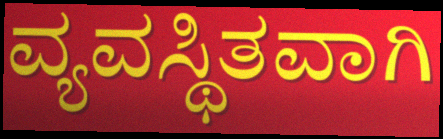
ವ್ಯವಸ್ಥಿತವಾಗಿ